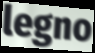
legno